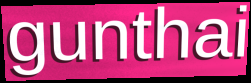
gunthai